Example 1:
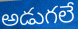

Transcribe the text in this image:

అడుగలే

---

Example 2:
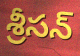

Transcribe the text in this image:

శ్రీసన్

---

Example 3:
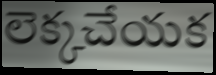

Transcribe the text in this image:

లెక్కచేయక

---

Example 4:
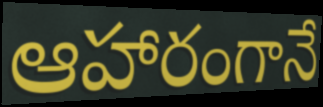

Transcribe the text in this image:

ఆహారంగానే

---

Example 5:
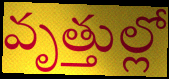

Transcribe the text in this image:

వృత్తుల్లో